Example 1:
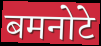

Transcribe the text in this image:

बमनोटे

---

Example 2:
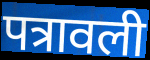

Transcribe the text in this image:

पत्रावली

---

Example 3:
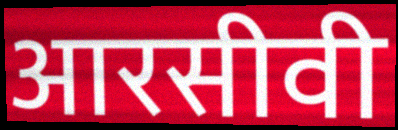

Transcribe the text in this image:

आरसीवी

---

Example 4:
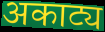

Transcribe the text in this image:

अकाट्य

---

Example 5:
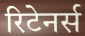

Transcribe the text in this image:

रिटेनर्स